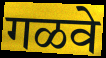
गळवे